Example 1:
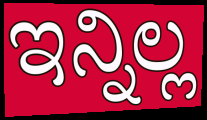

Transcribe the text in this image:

ಇನ್ನಿಲ್ಲ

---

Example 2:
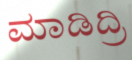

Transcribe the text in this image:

ಮಾಡಿದ್ರಿ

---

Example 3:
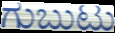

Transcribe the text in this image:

ಗುಬುಟು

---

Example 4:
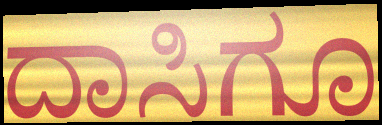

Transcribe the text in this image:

ದಾಸಿಗೂ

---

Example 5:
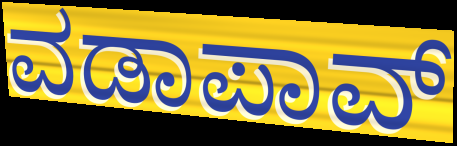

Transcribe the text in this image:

ವಡಾಪಾವ್